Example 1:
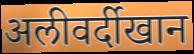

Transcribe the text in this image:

अलीवर्दीखान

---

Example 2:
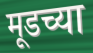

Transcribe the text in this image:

मूडच्या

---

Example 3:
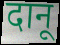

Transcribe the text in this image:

दानू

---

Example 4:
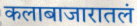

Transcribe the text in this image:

कलाबाजारातलं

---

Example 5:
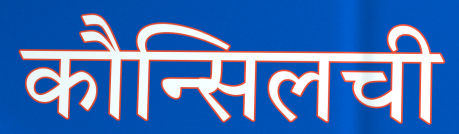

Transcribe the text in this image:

कौन्सिलची